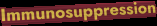
Immunosuppression